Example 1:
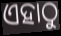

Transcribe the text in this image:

ଏହାଠୁ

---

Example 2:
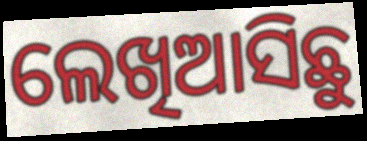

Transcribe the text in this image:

ଲେଖିଆସିଛୁ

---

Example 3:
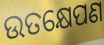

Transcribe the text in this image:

ଉତକ୍ଷେପଣ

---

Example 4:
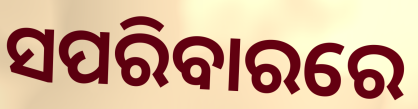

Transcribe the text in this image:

ସପରିବାରରେ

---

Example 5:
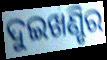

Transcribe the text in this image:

ଦୁଇଖଣ୍ଡିର